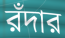
রঁদার